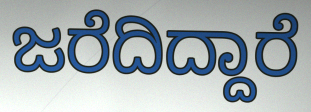
ಜರೆದಿದ್ದಾರೆ